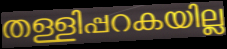
തള്ളിപ്പറകയില്ല